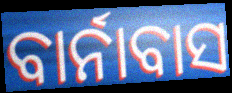
ବାର୍ନାବାସ